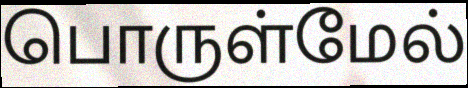
பொருள்மேல்